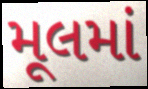
મૂલમાં